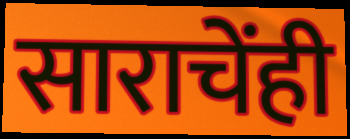
साराचेंही